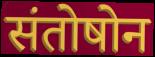
संतोषोन